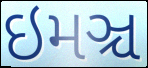
ઇમઞ્ચ